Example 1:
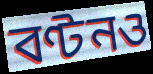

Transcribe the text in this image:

বণ্টনও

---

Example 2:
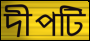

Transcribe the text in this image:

দীপটি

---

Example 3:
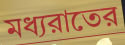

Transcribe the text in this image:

মধ্যরাতের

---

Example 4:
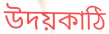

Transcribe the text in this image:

উদয়কাঠি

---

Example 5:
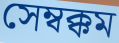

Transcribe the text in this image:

সেম্বক্কম